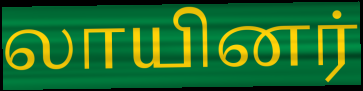
லாயினர்